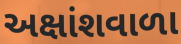
અક્ષાંશવાળા